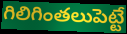
గిలిగింతలుపెట్టే